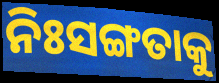
ନିଃସଙ୍ଗତାକୁ